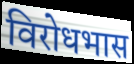
विरोधभास